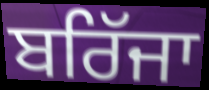
ਬਰਿੱਜਾ